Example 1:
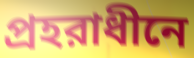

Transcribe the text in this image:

প্রহরাধীনে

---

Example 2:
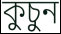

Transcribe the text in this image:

কুচুন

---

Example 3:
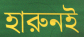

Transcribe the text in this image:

হারুনই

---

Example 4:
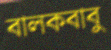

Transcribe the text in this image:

বালকবাবু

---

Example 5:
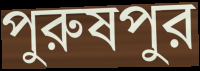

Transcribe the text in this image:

পুরুষপুর